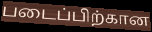
படைப்பிற்கான